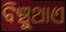
ବିଞ୍ଚୁଥାଏ